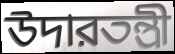
উদারতন্ত্রী